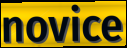
novice